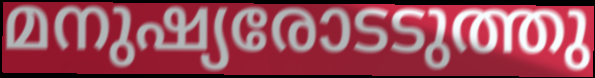
മനുഷ്യരോടടുത്തു